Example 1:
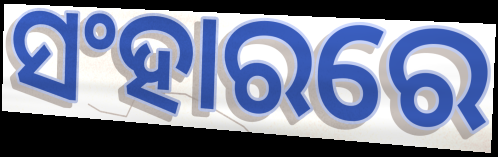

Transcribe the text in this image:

ସଂହାରରେ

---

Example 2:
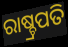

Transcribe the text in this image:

ରାଷ୍ଚ୍ରପତି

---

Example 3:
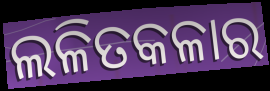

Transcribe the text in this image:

ଲଳିତକଳାର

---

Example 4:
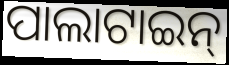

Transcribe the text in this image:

ପାଲାଟାଇନ୍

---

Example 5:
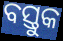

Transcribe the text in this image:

ବସ୍ତୁକ